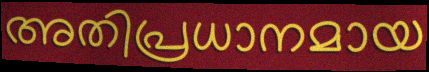
അതിപ്രധാനമായ